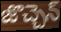
జొచ్చెన్